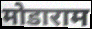
मोडाराम